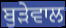
ਬੁੜੇਵਾਲ